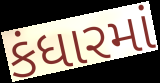
કંધારમાં